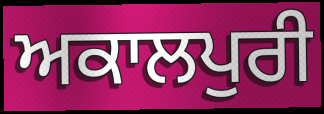
ਅਕਾਲਪੁਰੀ